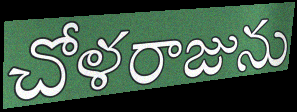
చోళరాజును